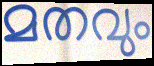
മതവും